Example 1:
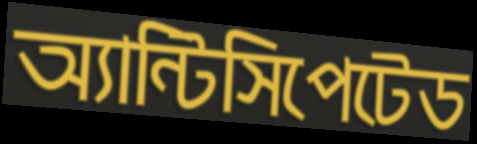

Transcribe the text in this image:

অ্যান্টিসিপেটেড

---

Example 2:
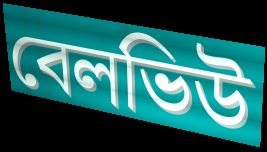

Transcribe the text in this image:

বেলভিউ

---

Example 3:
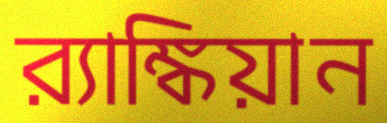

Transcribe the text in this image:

র‍্যাঙ্কিয়ান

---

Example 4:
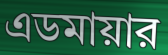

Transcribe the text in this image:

এডমায়ার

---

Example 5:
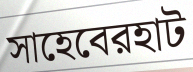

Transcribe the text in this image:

সাহেবেরহাট